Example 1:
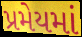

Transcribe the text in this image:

પ્રમેયમાં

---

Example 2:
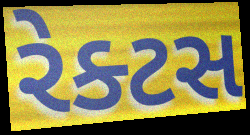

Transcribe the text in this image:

રેક્ટસ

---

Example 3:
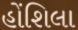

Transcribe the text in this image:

હોંશિલા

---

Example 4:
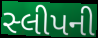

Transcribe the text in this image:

સ્લીપની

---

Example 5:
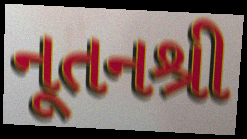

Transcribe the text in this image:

નૂતનશ્રી